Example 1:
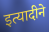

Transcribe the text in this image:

इत्यादीने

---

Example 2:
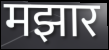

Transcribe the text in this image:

मझार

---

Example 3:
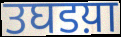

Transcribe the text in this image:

उघडय़ा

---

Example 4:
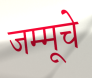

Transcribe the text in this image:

जम्मूचे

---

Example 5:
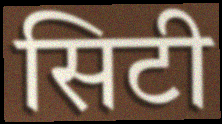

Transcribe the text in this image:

सिटी